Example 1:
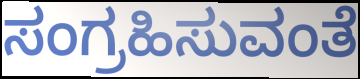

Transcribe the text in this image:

ಸಂಗ್ರಹಿಸುವಂತೆ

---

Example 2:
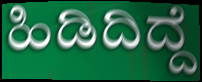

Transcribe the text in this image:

ಹಿಡಿದಿದ್ದೆ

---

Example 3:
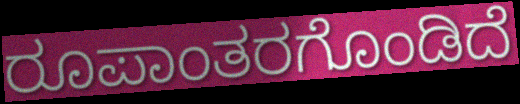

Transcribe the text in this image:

ರೂಪಾಂತರಗೊಂಡಿದೆ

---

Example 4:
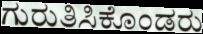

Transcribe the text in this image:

ಗುರುತಿಸಿಕೊಂಡರು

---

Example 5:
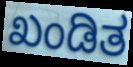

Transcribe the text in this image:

ಖಂಡಿತ